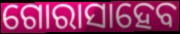
ଗୋରାସାହେବ